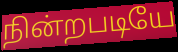
நின்றபடியே